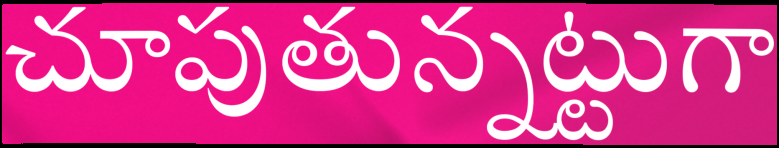
చూపుతున్నట్టుగా